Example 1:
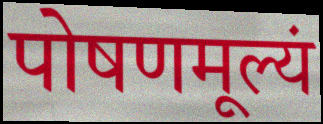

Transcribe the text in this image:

पोषणमूल्यं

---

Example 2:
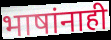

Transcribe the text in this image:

भाषांनाही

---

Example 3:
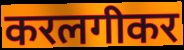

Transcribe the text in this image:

करलगीकर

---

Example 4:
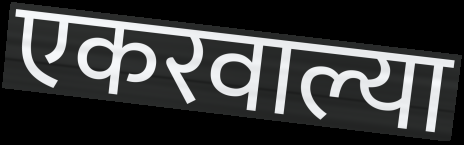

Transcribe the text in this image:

एकरवाल्या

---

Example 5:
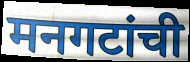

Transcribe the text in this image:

मनगटांची